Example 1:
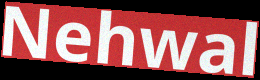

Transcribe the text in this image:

Nehwal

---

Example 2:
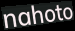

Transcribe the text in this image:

nahoto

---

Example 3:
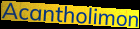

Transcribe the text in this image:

Acantholimon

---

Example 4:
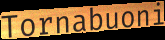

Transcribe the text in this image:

Tornabuoni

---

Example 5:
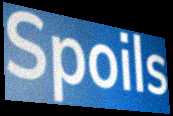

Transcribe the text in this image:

Spoils